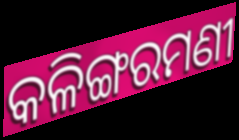
କଳିଙ୍ଗରମଣୀ